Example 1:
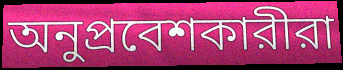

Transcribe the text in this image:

অনুপ্রবেশকারীরা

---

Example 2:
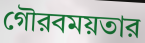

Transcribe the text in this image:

গৌরবময়তার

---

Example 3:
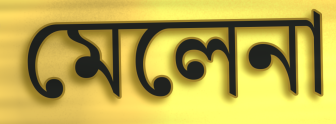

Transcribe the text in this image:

মেলেনা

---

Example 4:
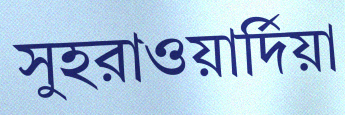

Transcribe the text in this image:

সুহরাওয়ার্দিয়া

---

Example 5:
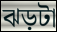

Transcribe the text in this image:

ঝড়টা